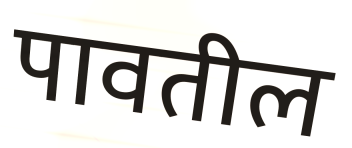
पावतील